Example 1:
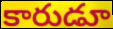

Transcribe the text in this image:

కారుడూ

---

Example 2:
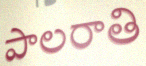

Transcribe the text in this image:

పాలరాతి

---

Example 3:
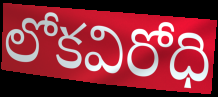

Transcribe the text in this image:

లోకవిరోధి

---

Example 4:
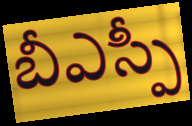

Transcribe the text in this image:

బీఎస్పీ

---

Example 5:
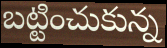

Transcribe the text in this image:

బట్టించుకున్న